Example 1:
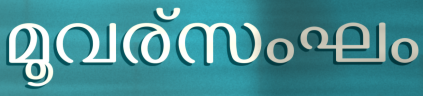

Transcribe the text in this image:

മൂവര്സംഘം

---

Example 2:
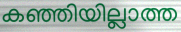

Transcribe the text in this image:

കഞ്ഞിയില്ലാത്ത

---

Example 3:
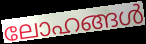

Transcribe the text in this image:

ലോഹങ്ങൾ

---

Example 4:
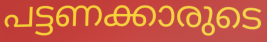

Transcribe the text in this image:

പട്ടണക്കാരുടെ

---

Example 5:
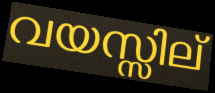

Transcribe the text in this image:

വയസ്സില്